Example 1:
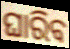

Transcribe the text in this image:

ଘାରିବ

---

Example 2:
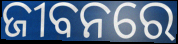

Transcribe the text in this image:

ଜୀବନରେ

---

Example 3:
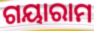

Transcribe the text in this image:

ଗୟାରାମ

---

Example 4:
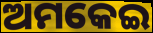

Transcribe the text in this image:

ଅମକେଇ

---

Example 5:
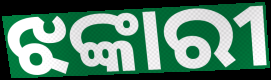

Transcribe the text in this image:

ଝଙ୍କାରୀ